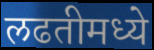
लढतीमध्ये